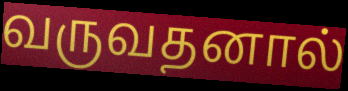
வருவதனால்